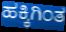
ಹಕ್ಕಿಗಿಂತ